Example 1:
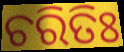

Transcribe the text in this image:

ଚରିତିଃ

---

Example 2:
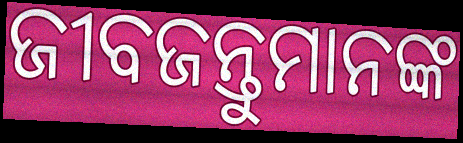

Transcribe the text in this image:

ଜୀବଜନ୍ତୁମାନଙ୍କ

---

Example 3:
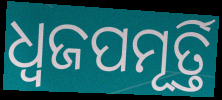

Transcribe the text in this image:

ଧ୍ୱଜପମୂର୍ତ୍ତି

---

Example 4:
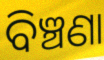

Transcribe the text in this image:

ବିଞ୍ଚଣା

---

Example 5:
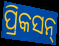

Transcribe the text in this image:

ପ୍ରିକସନ୍